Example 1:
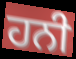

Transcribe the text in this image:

ਹਨੀ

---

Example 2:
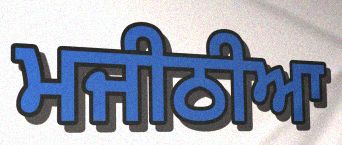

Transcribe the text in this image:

ਮਜੀਠੀਆ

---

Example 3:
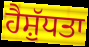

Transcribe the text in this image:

ਹੈਸ਼ੁੱਧਤਾ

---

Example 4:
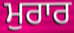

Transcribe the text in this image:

ਮੁਰਾਰ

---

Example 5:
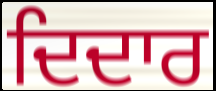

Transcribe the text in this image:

ਦਿਦਾਰ